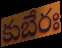
కుబేరః